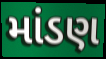
માંડણ